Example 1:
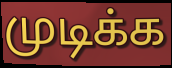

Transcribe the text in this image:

முடிக்க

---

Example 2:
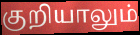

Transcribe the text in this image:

குறியாலும்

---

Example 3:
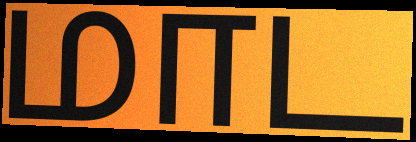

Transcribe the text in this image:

மாட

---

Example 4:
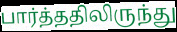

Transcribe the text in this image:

பார்த்ததிலிருந்து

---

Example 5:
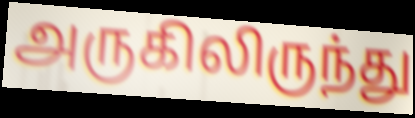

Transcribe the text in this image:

அருகிலிருந்து